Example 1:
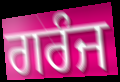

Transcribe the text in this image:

ਗਰੰਜ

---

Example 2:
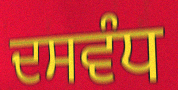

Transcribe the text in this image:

ਦਸਵੰਧ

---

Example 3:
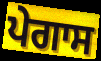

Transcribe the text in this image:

ਪੇਗਾਸ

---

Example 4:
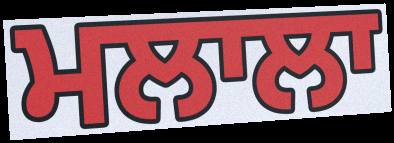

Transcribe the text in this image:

ਮਲਾਲਾ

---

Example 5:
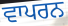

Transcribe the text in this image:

ਵਾਪਰਨ